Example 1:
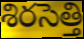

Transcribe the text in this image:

శిరసెత్తి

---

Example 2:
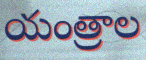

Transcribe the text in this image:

యంత్రాల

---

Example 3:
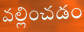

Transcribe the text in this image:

వల్లించడం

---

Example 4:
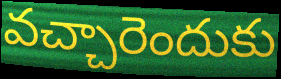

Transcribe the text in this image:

వచ్చారెందుకు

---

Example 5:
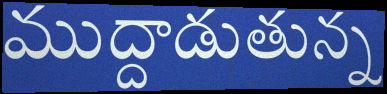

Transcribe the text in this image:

ముద్దాడుతున్న